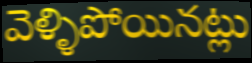
వెళ్ళిపోయినట్లు